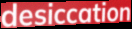
desiccation